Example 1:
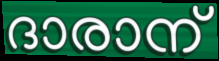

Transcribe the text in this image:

ദാരാന്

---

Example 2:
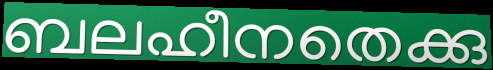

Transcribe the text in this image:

ബലഹീനതെക്കു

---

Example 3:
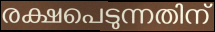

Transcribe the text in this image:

രക്ഷപെടുന്നതിന്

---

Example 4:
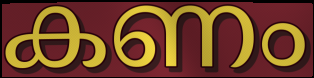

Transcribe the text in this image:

കണം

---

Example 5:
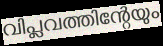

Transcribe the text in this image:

വിപ്ലവത്തിന്റേയും